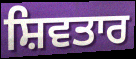
ਸ਼ਿਵਤਾਰ